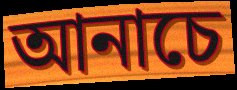
আনাচে